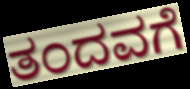
ತಂದವಗೆ